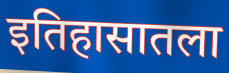
इतिहासातला